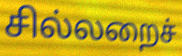
சில்லறைச்